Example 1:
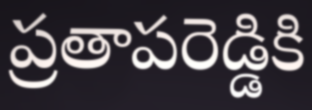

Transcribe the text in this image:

ప్రతాపరెడ్డికి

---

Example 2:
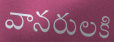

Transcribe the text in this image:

వానరులకి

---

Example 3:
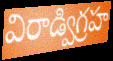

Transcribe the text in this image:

విరాడ్విగ్రహ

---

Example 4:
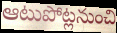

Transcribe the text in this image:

ఆటుపోట్లనుంచి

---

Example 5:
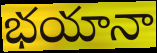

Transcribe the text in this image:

భయానా